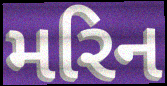
મરિન